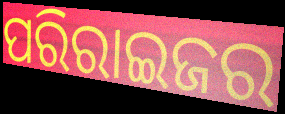
ପରିରାଇଜର